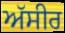
ਅੱਸੀਰ